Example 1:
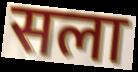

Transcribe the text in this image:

सला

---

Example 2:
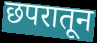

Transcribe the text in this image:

छपरातून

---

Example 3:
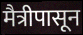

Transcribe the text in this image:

मैत्रीपासून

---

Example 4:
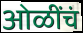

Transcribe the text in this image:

ओळींचं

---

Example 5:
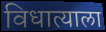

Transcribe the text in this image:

विधात्याला